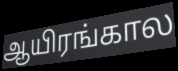
ஆயிரங்கால